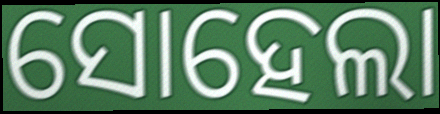
ସୋହେଲା